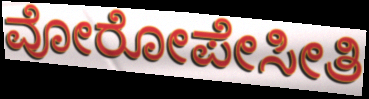
ವೋರೋಪೇಸೀತಿ